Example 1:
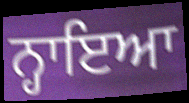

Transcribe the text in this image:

ਨ੍ਹ੍ਹਾਇਆ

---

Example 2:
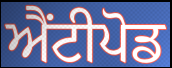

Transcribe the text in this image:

ਐਂਟੀਪੋਡ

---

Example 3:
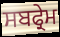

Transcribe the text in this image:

ਸਬਫ੍ਰੇਮ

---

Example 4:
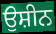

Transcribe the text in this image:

ਉਸ਼ੀਨ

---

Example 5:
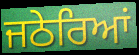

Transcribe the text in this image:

ਜਠੇਰਿਆਂ